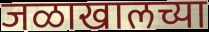
जळाखालच्या